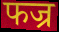
फज्र